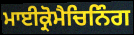
ਮਾਈਕ੍ਰੋਮੈਚਿਨਿੰਗ